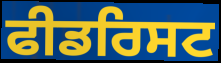
ਫੀਡਰਿਸਟ